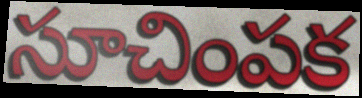
సూచింపక